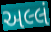
અલ્લં